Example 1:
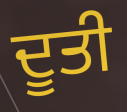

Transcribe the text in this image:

ਦੂਤੀ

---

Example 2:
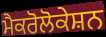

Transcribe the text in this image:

ਮੈਕਰੋਲੋਕੇਸ਼ਨ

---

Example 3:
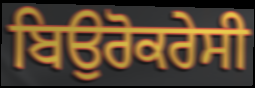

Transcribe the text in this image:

ਬਿਉਰੋਕਰੇਸੀ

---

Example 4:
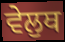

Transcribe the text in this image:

ਵੇਲੁਥ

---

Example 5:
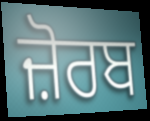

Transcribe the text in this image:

ਜ਼ੋਰਬ